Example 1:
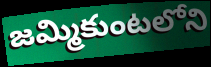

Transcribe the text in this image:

జమ్మికుంటలోని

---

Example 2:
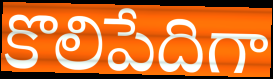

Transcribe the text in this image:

కొలిపేదిగా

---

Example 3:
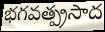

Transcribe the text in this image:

భగవత్ప్రసాద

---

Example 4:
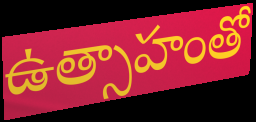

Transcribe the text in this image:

ఉత్సాహంతో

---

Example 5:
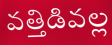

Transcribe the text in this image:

వత్తిడివల్ల